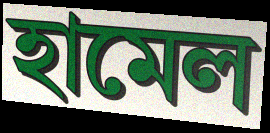
হামেল